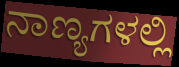
ನಾಣ್ಯಗಳಲ್ಲಿ